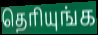
தெரியுங்க